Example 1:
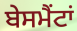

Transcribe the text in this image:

ਬੇਸਮੈਂਟਾਂ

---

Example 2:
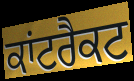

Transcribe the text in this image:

ਕਾਂਟਰੈਕਟ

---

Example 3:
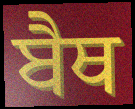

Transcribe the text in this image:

ਬੈਥ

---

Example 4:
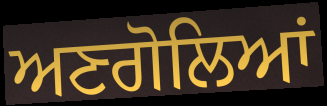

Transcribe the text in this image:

ਅਣਗੋਲਿਆਂ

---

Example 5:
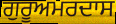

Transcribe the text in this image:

ਗੁਰੂਅਮਰਦਾਸ